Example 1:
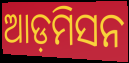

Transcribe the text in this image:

ଆଡ଼ମିସନ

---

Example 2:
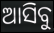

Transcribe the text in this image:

ଆସିବୁ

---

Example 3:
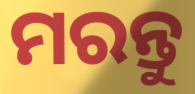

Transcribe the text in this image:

ମରନ୍ତୁ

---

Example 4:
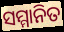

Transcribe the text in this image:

ସମ୍ମାନିତ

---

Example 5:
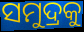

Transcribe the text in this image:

ସମୁଦ୍ରକୁ